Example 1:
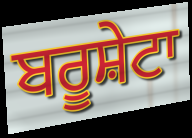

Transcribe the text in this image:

ਬਰੂਸ਼ੇਟਾ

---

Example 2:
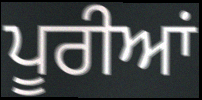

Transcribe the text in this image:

ਪੂਰੀਆਂ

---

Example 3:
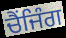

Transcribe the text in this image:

ਚੈਂਜਿੰਗ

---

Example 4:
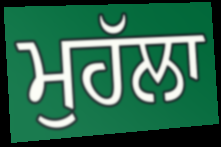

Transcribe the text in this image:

ਮੁਹੱਲਾ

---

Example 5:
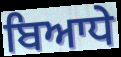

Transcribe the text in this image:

ਬਿਆਧੇ